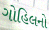
ગોહિલનો